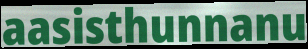
aasisthunnanu